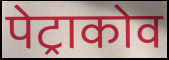
पेट्राकोव